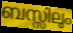
ബസ്സിലും